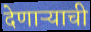
देणाऱ्याची